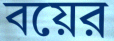
বয়ের